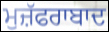
ਮੁਜ਼ੱਫਰਾਬਾਦ